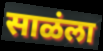
साळंला